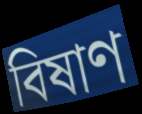
বিষাণ